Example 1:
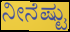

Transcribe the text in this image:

ನೀನೆಷ್ಟು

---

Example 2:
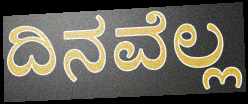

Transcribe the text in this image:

ದಿನವೆಲ್ಲ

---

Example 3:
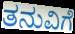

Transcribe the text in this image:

ತನುವಿಗೆ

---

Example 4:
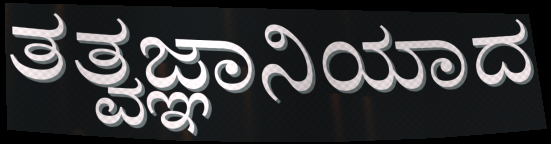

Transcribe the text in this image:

ತತ್ವಜ್ಞಾನಿಯಾದ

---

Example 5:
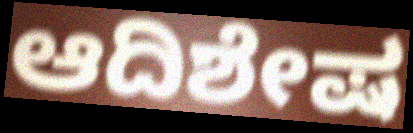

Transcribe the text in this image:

ಆದಿಶೇಷ